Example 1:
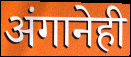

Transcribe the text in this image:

अंगानेही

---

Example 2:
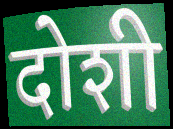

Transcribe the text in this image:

दोशी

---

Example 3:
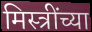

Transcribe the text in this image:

मिस्त्रींच्या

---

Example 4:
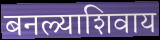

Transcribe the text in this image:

बनल्याशिवाय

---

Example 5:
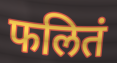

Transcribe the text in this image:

फलितं